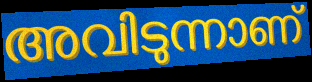
അവിടുന്നാണ്